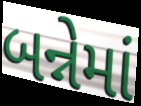
બન્નેમાં